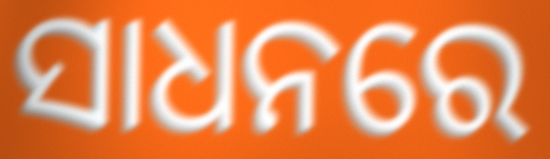
ସାଧନରେ